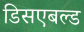
डिसएबल्ड